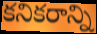
కనికరాన్ని